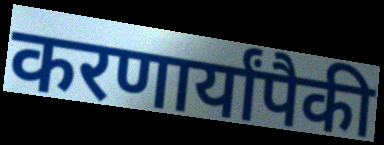
करणार्यांपैकी